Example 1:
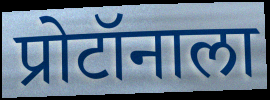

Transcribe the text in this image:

प्रोटॉनाला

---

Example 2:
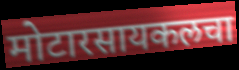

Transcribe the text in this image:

मोटारसायकलचा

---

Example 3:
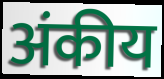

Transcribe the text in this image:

अंकीय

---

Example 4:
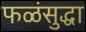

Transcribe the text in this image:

फळंसुद्धा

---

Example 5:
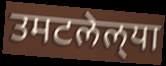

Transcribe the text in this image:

उमटलेल्या